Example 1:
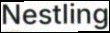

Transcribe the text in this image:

Nestling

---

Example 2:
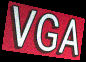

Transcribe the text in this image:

VGA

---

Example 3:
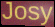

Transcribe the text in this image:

Josy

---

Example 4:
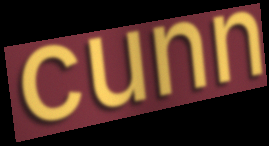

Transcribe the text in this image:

cunn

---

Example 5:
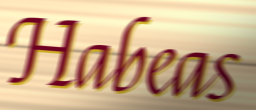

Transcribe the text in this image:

Habeas